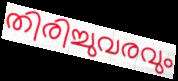
തിരിച്ചുവരവും